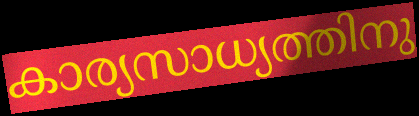
കാര്യസാധ്യത്തിനു